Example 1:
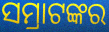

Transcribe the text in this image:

ସମ୍ରାଟଙ୍କର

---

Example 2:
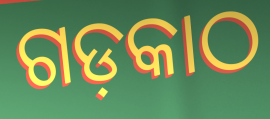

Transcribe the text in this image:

ଗଡ଼କାଠ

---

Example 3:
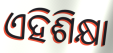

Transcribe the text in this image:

ଏହିଶିକ୍ଷା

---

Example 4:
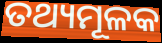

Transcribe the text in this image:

ତଥ୍ୟମୂଳକ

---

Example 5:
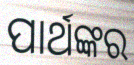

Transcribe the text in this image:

ପାର୍ଥଙ୍କର